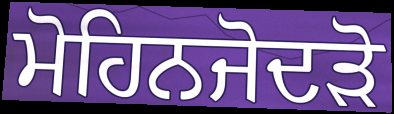
ਮੋਹਿਨਜੋਦੜੋ